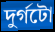
দুৰ্গটো